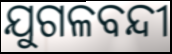
ଯୁଗଳବନ୍ଦୀ